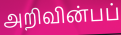
அறிவின்பப்